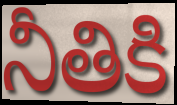
నీతికి